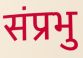
संप्रभु